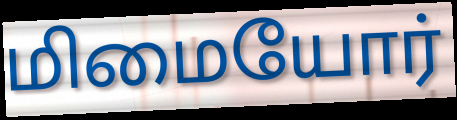
மிமையோர்